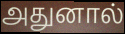
அதுனால்